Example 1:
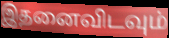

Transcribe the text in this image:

இதனைவிடவும்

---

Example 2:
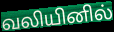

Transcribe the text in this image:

வலியினில்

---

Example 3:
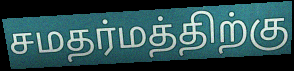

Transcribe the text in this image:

சமதர்மத்திற்கு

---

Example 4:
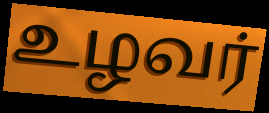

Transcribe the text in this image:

உழவர்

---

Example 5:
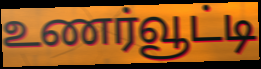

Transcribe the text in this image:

உணர்வூட்டி